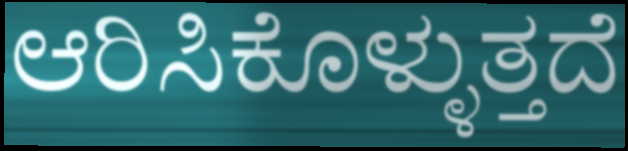
ಆರಿಸಿಕೊಳ್ಳುತ್ತದೆ